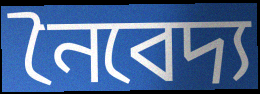
নৈবেদ্য